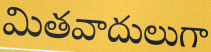
మితవాదులుగా